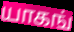
யாகங்